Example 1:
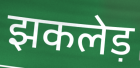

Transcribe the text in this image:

झकलेड़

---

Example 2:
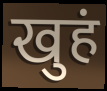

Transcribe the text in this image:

खुहं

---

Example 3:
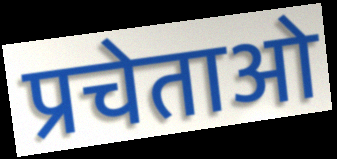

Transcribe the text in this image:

प्रचेताओ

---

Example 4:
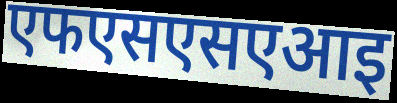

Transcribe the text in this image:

एफएसएसएआइ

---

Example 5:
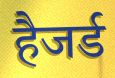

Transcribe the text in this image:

हैजर्ड